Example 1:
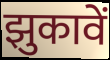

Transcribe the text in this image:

झुकावें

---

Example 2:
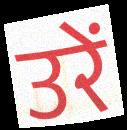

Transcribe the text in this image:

उरें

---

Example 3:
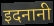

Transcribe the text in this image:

इदनानी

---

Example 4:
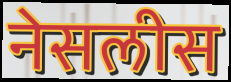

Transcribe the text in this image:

नेसलीस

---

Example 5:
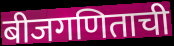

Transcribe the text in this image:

बीजगणिताची